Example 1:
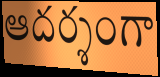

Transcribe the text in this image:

ఆదర్శంగా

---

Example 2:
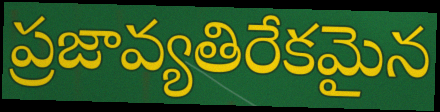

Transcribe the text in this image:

ప్రజావ్యతిరేకమైన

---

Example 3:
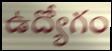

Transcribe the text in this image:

ఉద్యోగం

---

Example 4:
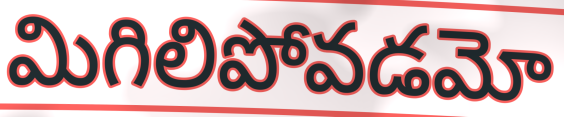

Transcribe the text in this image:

మిగిలిపోవడమో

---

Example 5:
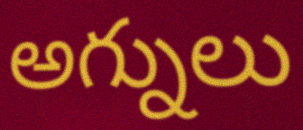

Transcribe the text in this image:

అగ్నులు